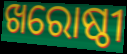
ଖରୋଷ୍ଠୀ